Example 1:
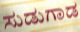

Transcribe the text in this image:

ಸುಡುಗಾಡ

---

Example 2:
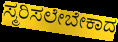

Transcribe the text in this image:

ಸ್ಮರಿಸಲೇಬೇಕಾದ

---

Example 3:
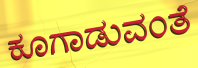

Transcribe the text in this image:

ಕೂಗಾಡುವಂತೆ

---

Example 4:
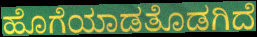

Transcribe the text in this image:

ಹೊಗೆಯಾಡತೊಡಗಿದೆ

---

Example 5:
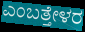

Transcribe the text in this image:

ಎಂಬತ್ತೇಳರ